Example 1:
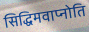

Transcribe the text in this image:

सिद्धिमवाप्नोति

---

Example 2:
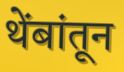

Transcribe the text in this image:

थेंबांतून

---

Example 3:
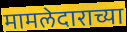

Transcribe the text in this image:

मामलेदाराच्या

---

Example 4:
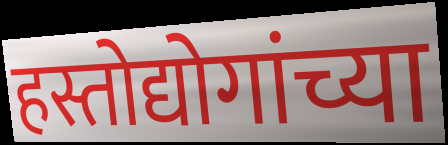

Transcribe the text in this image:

हस्तोद्योगांच्या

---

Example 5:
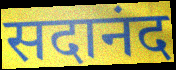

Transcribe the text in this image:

सदानंद